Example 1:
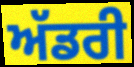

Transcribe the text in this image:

ਅੱਡਰੀ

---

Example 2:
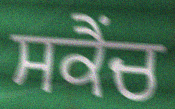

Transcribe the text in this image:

ਸਕੈਂਚ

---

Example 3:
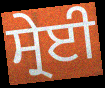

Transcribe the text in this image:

ਸ੍ਰੇਈ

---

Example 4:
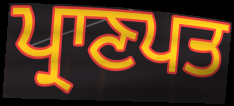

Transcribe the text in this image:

ਪ੍ਰਾਣਪਤ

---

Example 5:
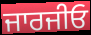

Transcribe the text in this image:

ਜਾਰਜੀਓ